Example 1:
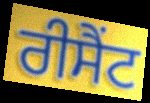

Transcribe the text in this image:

ਰੀਸੈਂਟ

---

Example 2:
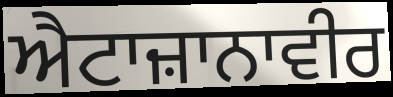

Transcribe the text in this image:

ਐਟਾਜ਼ਾਨਾਵੀਰ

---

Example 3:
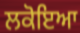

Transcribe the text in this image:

ਲਕੋਇਆ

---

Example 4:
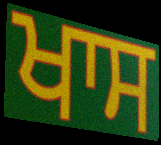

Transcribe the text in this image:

ਖਾਸ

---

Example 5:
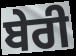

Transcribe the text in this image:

ਬੇਰੀ